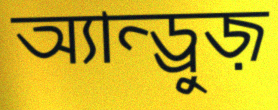
অ্যান্ড্রুজ়